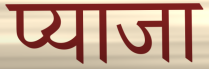
प्याजा